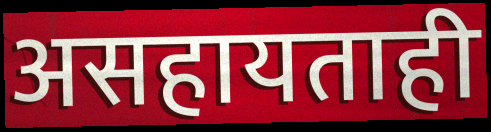
असहायताही